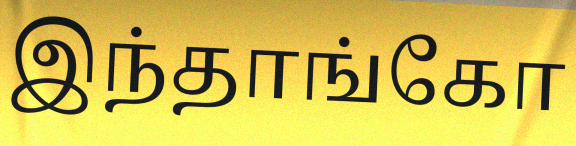
இந்தாங்கோ